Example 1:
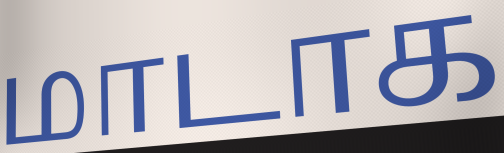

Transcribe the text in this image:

மாடாக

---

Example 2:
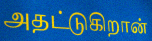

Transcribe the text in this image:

அதட்டுகிறான்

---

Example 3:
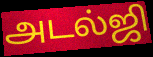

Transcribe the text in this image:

அடல்ஜி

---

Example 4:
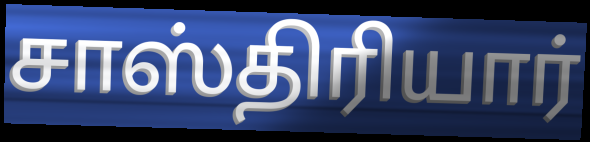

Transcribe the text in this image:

சாஸ்திரியார்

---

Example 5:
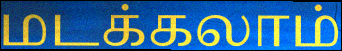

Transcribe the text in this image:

மடக்கலாம்